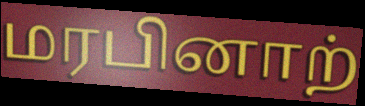
மரபினாற்